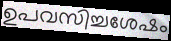
ഉപവസിച്ചശേഷം